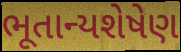
ભૂતાન્યશેષેણ